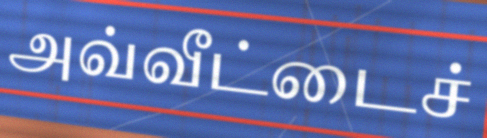
அவ்வீட்டைச்